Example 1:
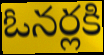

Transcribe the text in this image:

ఓనర్లకి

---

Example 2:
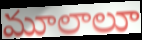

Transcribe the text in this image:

మూలాలూ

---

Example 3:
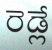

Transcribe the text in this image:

రెడ్లే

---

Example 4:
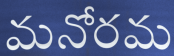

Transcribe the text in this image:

మనోరమ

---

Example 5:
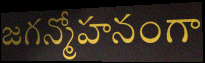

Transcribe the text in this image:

జగన్మోహనంగా